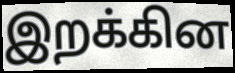
இறக்கின